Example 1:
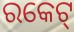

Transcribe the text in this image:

ରକେଟ୍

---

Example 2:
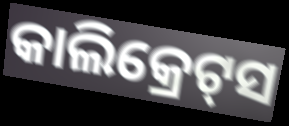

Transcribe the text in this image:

କାଲିକ୍ରେଟ୍‍ସ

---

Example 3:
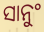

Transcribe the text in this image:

ସାନୁଂ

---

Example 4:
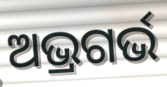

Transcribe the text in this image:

ଅଭ୍ରଗର୍ଭ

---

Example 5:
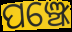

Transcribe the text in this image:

ପଞ୍ଝେ